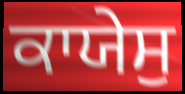
ਕਾਯੇਸੁ